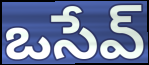
ఒసేవ్